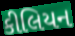
કીલિયન